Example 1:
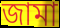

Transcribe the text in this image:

জামা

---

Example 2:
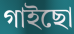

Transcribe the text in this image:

গাইছো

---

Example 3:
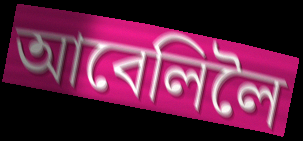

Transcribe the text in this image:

আবেলিলৈ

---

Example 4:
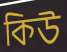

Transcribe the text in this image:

কিউ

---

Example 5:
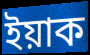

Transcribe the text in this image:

ইয়াক